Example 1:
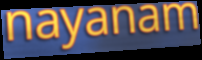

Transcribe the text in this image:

nayanam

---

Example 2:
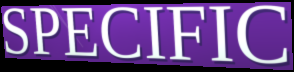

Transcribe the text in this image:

SPECIFIC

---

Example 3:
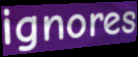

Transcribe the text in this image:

ignores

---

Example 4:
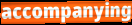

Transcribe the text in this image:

accompanying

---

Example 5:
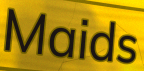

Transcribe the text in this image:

Maids